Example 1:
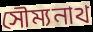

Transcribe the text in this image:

সৌম্যনাথ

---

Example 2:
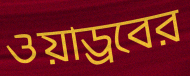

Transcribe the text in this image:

ওয়াড্রবের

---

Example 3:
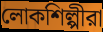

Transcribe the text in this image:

লোকশিল্পীরা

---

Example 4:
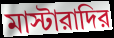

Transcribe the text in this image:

মাস্টারাদির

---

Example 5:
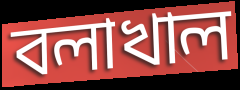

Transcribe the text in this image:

বলাখাল